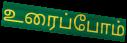
உரைப்போம்